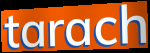
tarach